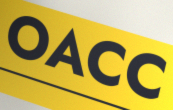
OACC